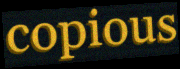
copious